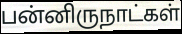
பன்னிருநாட்கள்